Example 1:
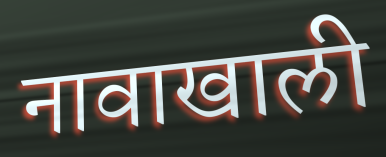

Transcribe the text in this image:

नावाखाली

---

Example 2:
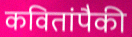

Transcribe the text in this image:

कवितांपैकी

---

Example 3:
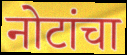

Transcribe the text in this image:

नोटांचा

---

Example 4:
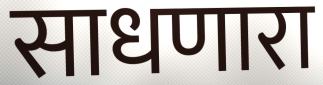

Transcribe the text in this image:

साधणारा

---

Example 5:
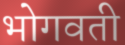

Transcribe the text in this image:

भोगवती